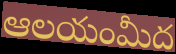
ఆలయంమీద